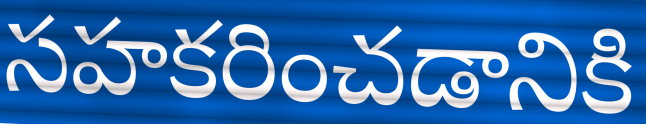
సహకరించడానికి